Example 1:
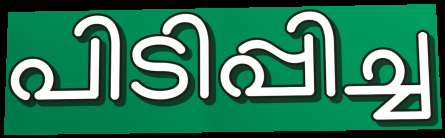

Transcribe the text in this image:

പിടിപ്പിച്ച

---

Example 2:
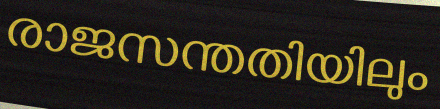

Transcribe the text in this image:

രാജസന്തതിയിലും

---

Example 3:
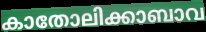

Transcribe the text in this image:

കാതോലിക്കാബാവ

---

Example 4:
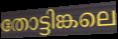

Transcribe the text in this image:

തോട്ടിങ്കലെ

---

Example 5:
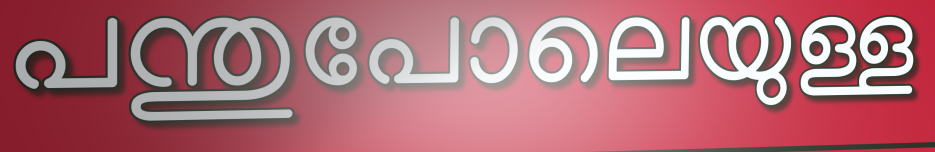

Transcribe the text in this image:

പന്തുപോലെയുള്ള